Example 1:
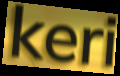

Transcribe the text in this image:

keri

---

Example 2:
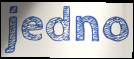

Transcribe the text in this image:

jedno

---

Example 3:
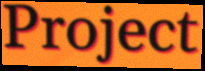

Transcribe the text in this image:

Project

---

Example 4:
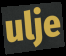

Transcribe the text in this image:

ulje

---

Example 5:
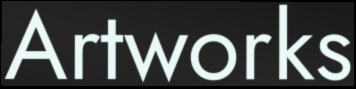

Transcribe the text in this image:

Artworks